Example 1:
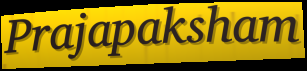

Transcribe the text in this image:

Prajapaksham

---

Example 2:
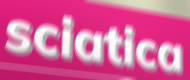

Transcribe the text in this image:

sciatica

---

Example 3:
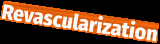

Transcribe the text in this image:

Revascularization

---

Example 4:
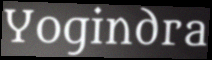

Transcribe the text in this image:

Yogindra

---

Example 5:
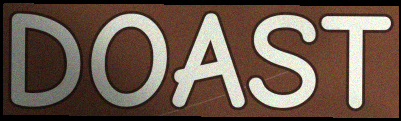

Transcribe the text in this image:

DOAST